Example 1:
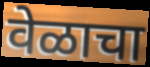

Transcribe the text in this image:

वेळाचा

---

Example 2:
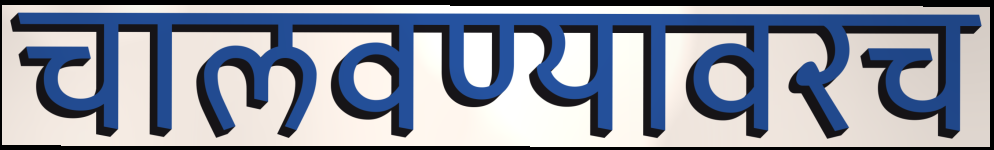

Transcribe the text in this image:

चालवण्यावरच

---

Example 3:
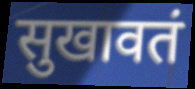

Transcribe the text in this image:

सुखावतं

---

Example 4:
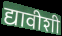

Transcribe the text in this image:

द्यावीशी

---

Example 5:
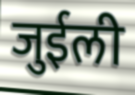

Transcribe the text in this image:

जुईली